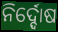
ନିର୍ଦ୍ଦୋଷ